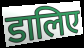
डालिए